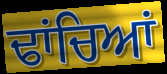
ਢਾਂਚਿਆਂ